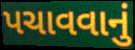
પચાવવાનું